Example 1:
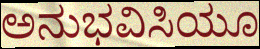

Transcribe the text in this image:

ಅನುಭವಿಸಿಯೂ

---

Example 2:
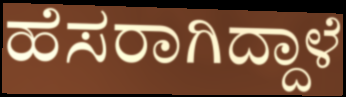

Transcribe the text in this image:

ಹೆಸರಾಗಿದ್ದಾಳೆ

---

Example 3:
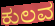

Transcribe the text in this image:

ಕುಲವ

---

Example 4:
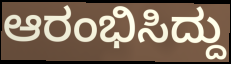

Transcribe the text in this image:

ಆರಂಭಿಸಿದ್ದು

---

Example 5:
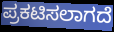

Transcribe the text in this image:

ಪ್ರಕಟಿಸಲಾಗದೆ